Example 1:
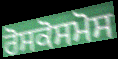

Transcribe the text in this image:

ਰੋਸਕੋਸਮੋਸ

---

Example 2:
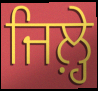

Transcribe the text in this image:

ਜਿਲ਼੍ਹੇ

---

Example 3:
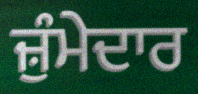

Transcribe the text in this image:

ਜ਼ੁੰਮੇਦਾਰ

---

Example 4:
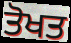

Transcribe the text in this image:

ਤੋਖਤ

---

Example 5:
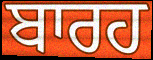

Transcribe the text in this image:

ਬਾਰਹ